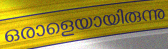
ഒരാളെയായിരുന്നു